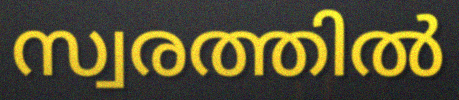
സ്വരത്തിൽ